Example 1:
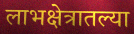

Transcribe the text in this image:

लाभक्षेत्रातल्या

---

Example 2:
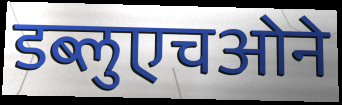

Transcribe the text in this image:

डब्लुएचओने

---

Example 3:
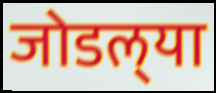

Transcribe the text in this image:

जोडल्या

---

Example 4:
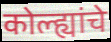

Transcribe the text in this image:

कोल्ह्यांचे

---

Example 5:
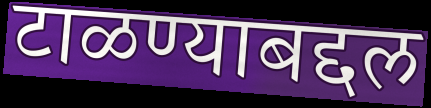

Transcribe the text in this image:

टाळण्याबद्दल